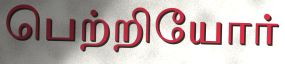
பெற்றியோர்